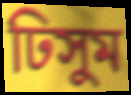
ঢিসুম